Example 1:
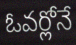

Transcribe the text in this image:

ఓవర్లోనే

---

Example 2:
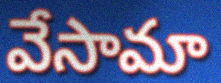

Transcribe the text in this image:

వేసామా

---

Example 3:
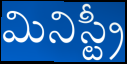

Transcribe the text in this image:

మినిస్ట్రీ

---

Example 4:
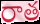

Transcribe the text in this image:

రాత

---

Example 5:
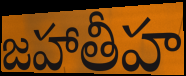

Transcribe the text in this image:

జహాతీహ